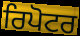
ਰਿਪੋਟਰ